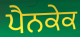
ਪੈਨਕੇਕ